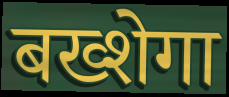
बख्शेगा